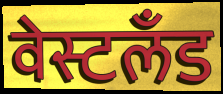
वेस्टलँड